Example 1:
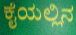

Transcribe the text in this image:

ಕೈಯಲ್ಲಿನ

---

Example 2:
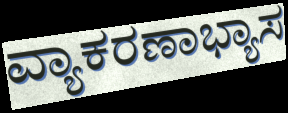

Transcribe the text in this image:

ವ್ಯಾಕರಣಾಭ್ಯಾಸ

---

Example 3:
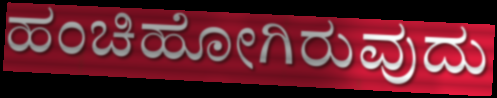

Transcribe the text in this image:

ಹಂಚಿಹೋಗಿರುವುದು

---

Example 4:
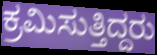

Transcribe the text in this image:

ಕ್ರಮಿಸುತ್ತಿದ್ದರು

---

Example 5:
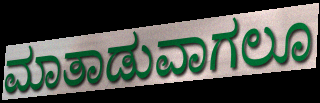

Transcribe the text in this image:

ಮಾತಾಡುವಾಗಲೂ